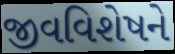
જીવવિશેષને